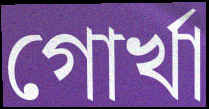
গোর্খা